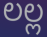
లల్ల